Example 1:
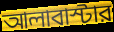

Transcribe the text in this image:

আলাবাস্টার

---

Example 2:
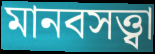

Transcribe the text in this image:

মানবসত্ত্বা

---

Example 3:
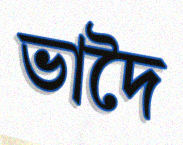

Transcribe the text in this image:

ভাদৈ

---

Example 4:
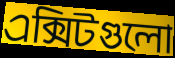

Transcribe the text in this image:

এক্সিটগুলো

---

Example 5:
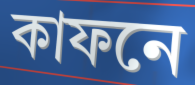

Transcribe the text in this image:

কাফনে